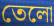
তেলো